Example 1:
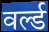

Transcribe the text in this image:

वर्ल्ड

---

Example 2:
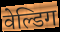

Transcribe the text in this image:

वेल्डिग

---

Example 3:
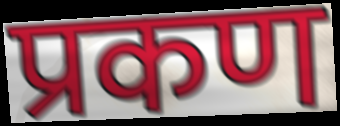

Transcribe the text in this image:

प्रकण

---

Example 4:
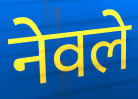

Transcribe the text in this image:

नेवले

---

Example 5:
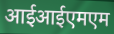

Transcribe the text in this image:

आईआईएमएम